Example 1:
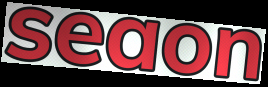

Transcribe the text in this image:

seaon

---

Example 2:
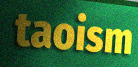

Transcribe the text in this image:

taoism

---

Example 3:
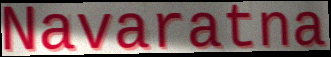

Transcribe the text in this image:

Navaratna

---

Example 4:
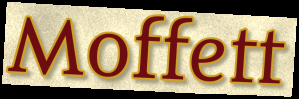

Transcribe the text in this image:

Moffett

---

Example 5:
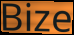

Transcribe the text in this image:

Bize